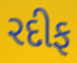
રદીફ